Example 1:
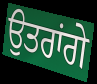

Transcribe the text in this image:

ਉਤਰਾਂਗੇ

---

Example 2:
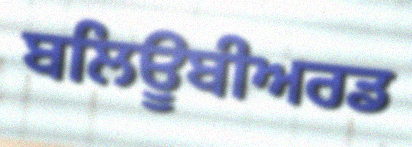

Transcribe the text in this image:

ਬਲਿਊਬੀਅਰਡ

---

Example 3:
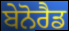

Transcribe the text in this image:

ਬੇਨੋਰੈਡ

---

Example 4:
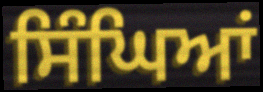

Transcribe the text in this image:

ਸਿੰਘਿਆਂ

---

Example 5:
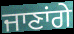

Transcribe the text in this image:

ਜਾਣਾਂਗੇ